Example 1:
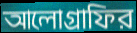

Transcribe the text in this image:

আলোগ্রাফির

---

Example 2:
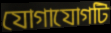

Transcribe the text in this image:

যোগাযোগটি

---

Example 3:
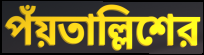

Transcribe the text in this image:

পঁয়তাল্লিশের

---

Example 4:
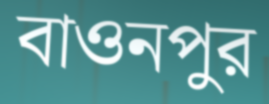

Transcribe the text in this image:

বাওনপুর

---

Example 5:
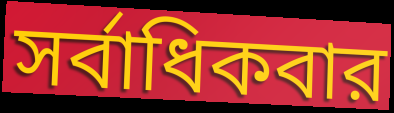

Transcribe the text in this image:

সর্বাধিকবার